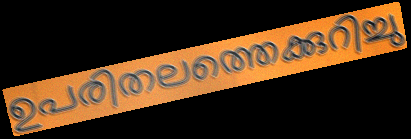
ഉപരിതലത്തെക്കുറിച്ചു